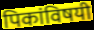
पिकांविषयी